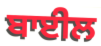
ਬਾਈਲ